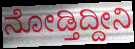
ನೋಡ್ತಿದ್ದೀನಿ